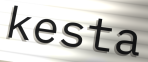
kesta